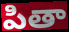
పితా